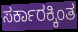
ಸರ್ಕಾರಕ್ಕಿಂತ